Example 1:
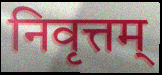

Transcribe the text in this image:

निवृत्तम्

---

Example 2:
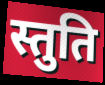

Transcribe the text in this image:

स्तुति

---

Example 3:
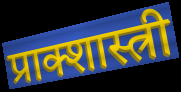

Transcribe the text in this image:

प्राक्शास्त्री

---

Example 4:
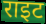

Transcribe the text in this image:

राइट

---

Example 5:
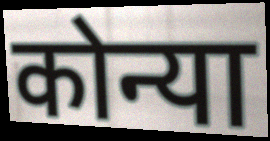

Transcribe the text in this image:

कोन्या